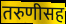
तरुणीसह